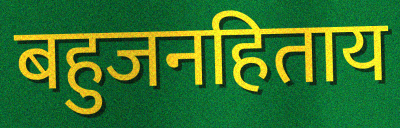
बहुजनहिताय